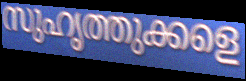
സുഹൃത്തുക്കളെ